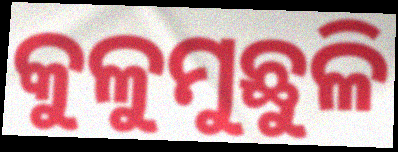
କୁଳୁମୁଛୁଳି